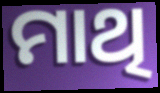
ମାଥି